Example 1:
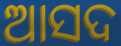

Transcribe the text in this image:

ଆସଦ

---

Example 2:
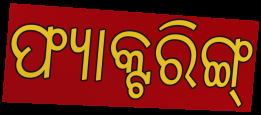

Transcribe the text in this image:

ଫ୍ୟାକ୍ଟରିଙ୍ଗ୍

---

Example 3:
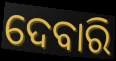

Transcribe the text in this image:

ଦେବାରି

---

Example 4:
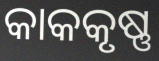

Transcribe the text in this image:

କାକକୃଷ୍ଣ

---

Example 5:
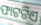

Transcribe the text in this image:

ଫାଟଟିଏ